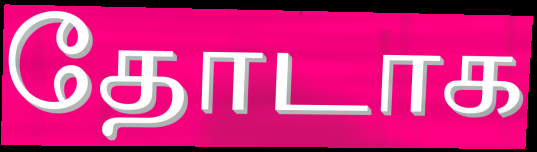
தோடாக